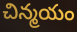
చిన్మయం